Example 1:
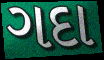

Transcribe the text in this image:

ગદા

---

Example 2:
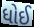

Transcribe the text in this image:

ધોઈ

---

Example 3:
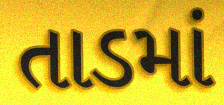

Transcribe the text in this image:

તાડમાં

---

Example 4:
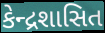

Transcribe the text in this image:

કેન્દ્રશાસિત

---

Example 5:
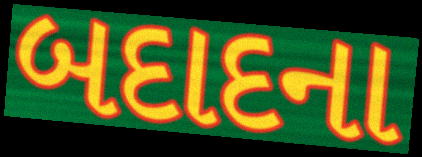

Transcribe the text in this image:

બદાદના